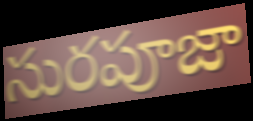
సురపూజా